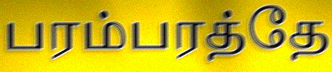
பரம்பரத்தே